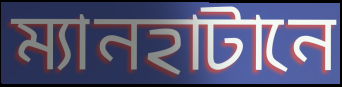
ম্যানহাটানে